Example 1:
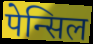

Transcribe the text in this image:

पेन्सिल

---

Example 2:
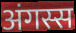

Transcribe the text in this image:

अंगस्स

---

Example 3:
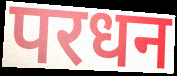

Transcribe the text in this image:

परधन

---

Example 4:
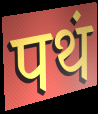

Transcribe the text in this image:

पथं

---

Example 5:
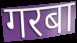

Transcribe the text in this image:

गरबा